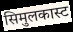
सिमुलकास्ट